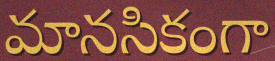
మానసికంగా